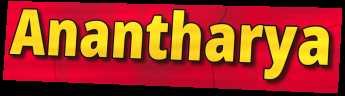
Anantharya